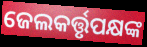
ଜେଲକର୍ତ୍ତୃପକ୍ଷଙ୍କ